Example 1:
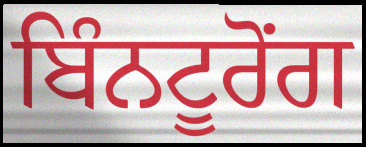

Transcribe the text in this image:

ਬਿੰਨਟੂਰੋਂਗ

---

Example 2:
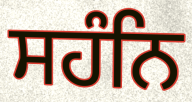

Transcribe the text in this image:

ਸਹੰਨਿ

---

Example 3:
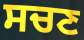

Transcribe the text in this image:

ਸਚਣ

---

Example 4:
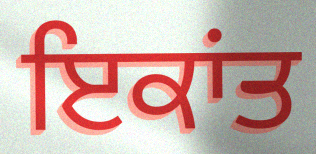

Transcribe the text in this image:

ਇਕਾਂਤ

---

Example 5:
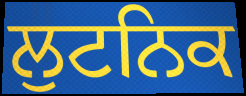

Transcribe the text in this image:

ਲੁਟਨਿਕ